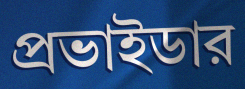
প্রভাইডার